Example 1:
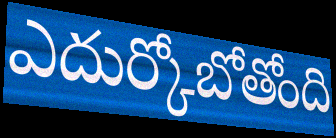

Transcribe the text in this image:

ఎదుర్కోబోతోంది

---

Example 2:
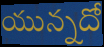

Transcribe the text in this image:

యున్నదో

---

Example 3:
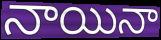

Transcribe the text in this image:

నాయినా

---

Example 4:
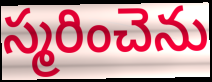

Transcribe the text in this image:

స్మరించెను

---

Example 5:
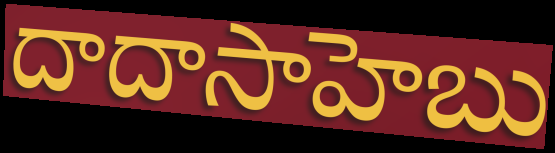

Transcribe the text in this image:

దాదాసాహెబు